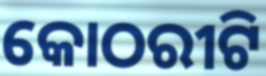
କୋଠରୀଟି